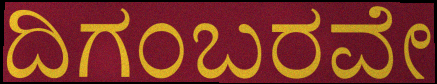
ದಿಗಂಬರವೇ